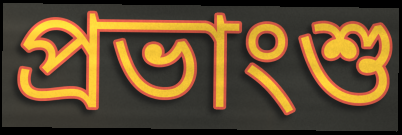
প্রভাংশু